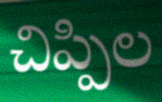
చిప్పిల